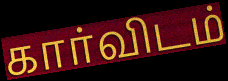
கார்விடம்